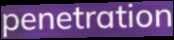
penetration